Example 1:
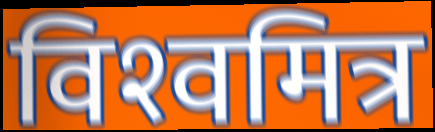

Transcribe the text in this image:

विश्वमित्र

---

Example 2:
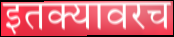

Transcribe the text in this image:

इतक्यावरच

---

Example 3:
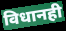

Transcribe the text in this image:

विधानही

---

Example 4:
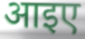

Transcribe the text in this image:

आइए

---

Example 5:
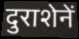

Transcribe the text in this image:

दुराशेनें